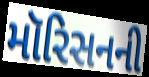
મૉરિસનની